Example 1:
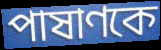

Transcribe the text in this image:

পাষাণকে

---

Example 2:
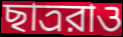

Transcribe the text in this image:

ছাত্ররাও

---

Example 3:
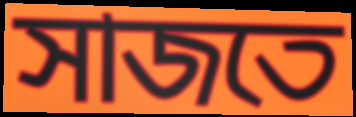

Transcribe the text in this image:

সাজতে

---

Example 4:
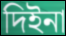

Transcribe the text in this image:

দিইনা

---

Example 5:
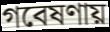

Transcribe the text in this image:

গবেষণায়